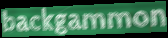
backgammon